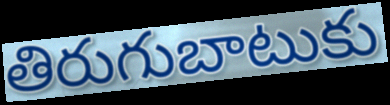
తిరుగుబాటుకు